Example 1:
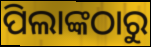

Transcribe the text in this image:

ପିଲାଙ୍କଠାରୁ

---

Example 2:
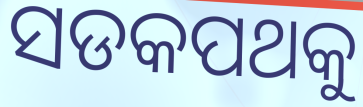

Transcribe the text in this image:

ସଡକପଥକୁ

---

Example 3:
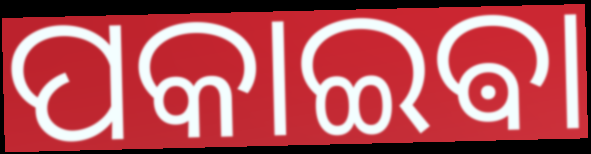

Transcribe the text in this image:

ପକାଇଵା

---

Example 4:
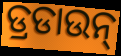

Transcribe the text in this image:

ଡ୍ରଡାଉନ୍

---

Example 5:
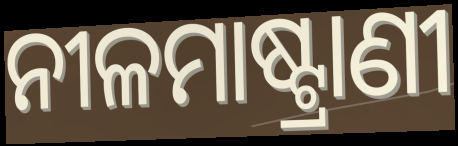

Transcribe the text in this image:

ନୀଳମାଷ୍ଟ୍ରାଣୀ